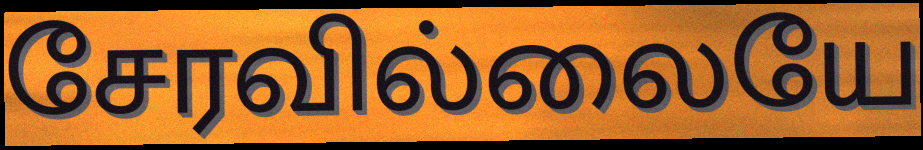
சேரவில்லையே